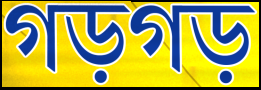
গড়গড়